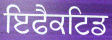
ਇਫੈਕਟਿਡ